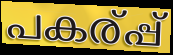
പകര്പ്പ്